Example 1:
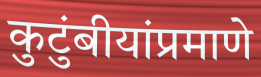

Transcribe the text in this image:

कुटुंबीयांप्रमाणे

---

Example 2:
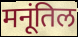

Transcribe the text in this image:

मनूंतिल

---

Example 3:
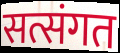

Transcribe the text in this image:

सत्संगत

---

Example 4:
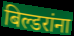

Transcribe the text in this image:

बिल्डरांना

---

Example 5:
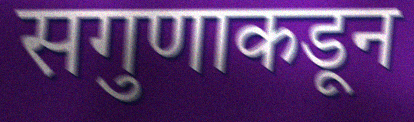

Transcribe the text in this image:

सगुणाकडून